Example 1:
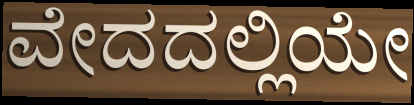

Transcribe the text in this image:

ವೇದದಲ್ಲಿಯೇ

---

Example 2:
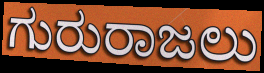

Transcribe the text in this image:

ಗುರುರಾಜಲು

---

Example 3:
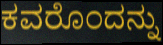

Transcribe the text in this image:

ಕವರೊಂದನ್ನು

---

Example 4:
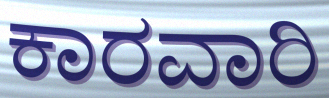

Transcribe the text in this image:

ಕಾರವಾರಿ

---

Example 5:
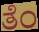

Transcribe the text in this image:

ತೆಂ